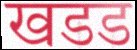
खडड